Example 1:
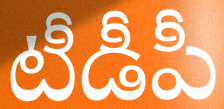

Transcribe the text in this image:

టీడీపీ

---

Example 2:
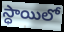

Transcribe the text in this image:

స్ధాయిలో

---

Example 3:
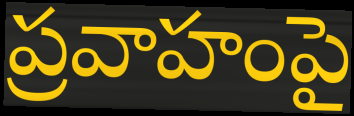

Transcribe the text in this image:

ప్రవాహంపై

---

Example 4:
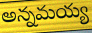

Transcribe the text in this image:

అన్నమయ్య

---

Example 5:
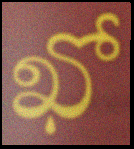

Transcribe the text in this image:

ఖో